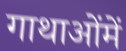
गाथाओंमें